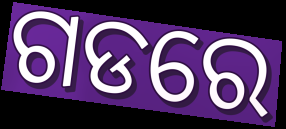
ଗଡରେ